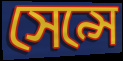
সেন্সে